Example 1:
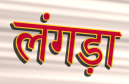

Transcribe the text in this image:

लंगड़ा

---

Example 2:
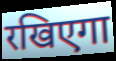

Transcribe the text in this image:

रखिएगा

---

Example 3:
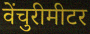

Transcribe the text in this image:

वेंचुरीमीटर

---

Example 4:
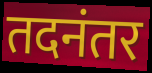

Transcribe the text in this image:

तदनंतर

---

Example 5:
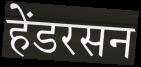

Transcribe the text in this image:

हेंडरसन